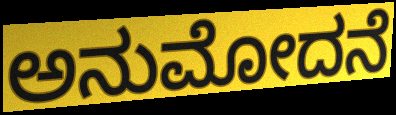
ಅನುಮೋದನೆ